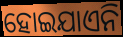
ହୋଇଯାଏନି